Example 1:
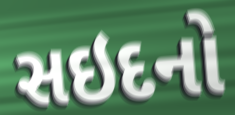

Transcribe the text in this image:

સઇદનો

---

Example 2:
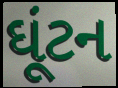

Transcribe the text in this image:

ઘૂંટન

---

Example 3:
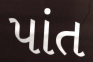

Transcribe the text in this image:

પાંત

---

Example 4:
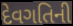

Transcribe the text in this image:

દેવગતિની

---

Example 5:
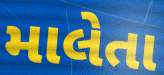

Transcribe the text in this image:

માલેતા